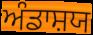
ਅੰਡਾਸ਼ਯ